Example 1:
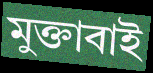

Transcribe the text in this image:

মুক্তাবাই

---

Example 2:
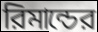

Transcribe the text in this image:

রিমান্ডের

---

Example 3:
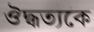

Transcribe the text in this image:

ঔদ্ধত্যকে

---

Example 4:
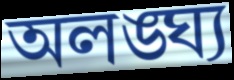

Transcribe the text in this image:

অলঙ্ঘ্য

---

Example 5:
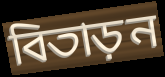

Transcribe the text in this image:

বিতাড়ন